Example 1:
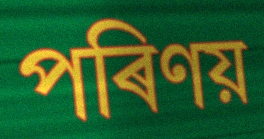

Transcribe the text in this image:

পৰিণয়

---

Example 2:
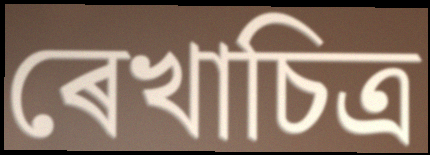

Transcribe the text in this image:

ৰেখাচিত্ৰ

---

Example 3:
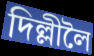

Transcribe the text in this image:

দিল্লীলৈ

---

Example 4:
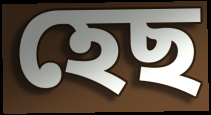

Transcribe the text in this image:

হেছ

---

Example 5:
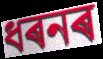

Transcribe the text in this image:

ধৰনৰ